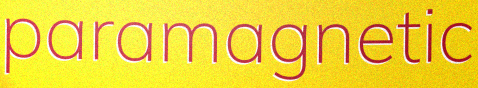
paramagnetic